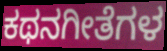
ಕಥನಗೀತೆಗಳ